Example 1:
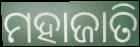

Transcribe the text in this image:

ମହାଜାତି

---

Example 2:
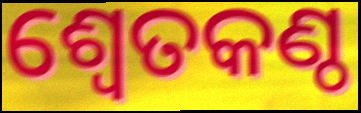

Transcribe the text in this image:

ଶ୍ୱେତକଣ୍ଠ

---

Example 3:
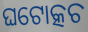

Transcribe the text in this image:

ଘଟୋତ୍କଚ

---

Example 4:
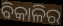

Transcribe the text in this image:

ବିକାଳିର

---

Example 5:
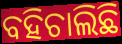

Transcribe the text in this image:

ବହିଚାଲିଛି